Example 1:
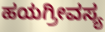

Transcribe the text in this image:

ಹಯಗ್ರೀವಸ್ಯ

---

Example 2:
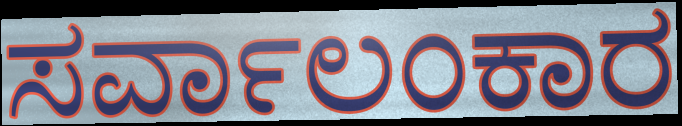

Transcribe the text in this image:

ಸರ್ವಾಲಂಕಾರ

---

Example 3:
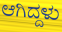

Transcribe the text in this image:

ಆಗಿದ್ದಳು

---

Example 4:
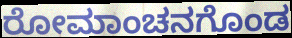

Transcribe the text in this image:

ರೋಮಾಂಚನಗೊಂಡ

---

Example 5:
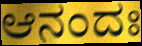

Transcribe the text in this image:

ಆನಂದಃ